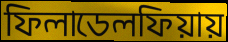
ফিলাডেলফিয়ায়